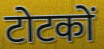
टोटकों